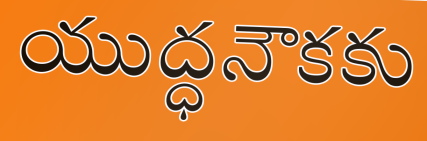
యుద్ధనౌకకు